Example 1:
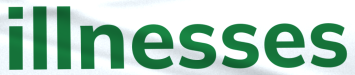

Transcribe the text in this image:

illnesses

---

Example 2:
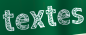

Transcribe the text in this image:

textes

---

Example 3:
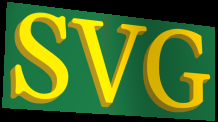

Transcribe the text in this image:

SVG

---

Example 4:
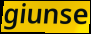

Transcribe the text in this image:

giunse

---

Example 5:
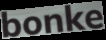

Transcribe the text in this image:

bonke